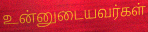
உன்னுடையவர்கள்